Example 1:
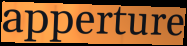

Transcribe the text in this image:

apperture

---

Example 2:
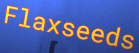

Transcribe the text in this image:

Flaxseeds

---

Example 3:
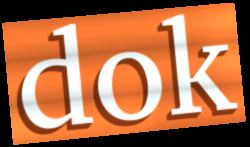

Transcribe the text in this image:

dok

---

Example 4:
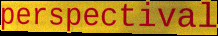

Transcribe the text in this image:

perspectival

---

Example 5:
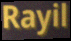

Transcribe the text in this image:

Rayil